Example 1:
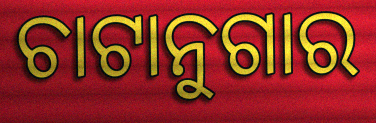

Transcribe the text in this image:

ଚାଟାନୁଗାର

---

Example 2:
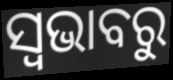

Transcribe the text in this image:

ସ୍ଵଭାବରୁ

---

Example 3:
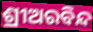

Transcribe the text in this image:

ଶ୍ରୀଅରବିନ୍ଦ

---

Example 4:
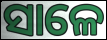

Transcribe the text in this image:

ସାଳେ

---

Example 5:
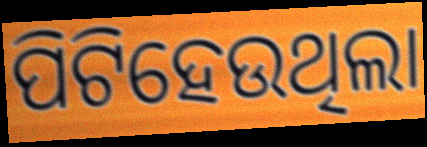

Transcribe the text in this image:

ପିଟିହେଉଥିଲା